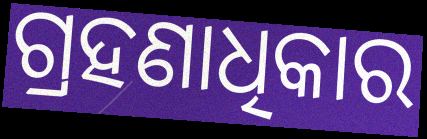
ଗ୍ରହଣାଧିକାର